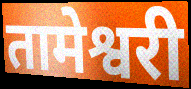
तामेश्वरी